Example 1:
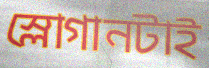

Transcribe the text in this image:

স্লোগানটাই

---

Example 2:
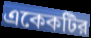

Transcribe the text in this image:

একেকটির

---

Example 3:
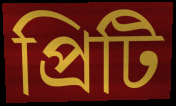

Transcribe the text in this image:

প্রিটি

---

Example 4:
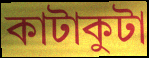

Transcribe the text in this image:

কাটাকুটা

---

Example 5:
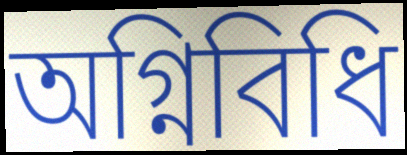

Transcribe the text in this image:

অগ্নিবিধি